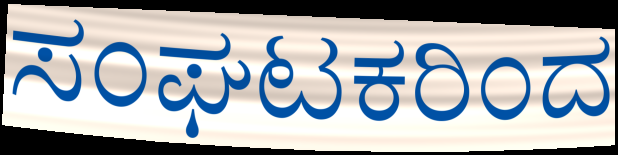
ಸಂಘಟಕರಿಂದ